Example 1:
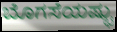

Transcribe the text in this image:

ಬೊಗಸೆಯಷ್ಟು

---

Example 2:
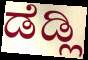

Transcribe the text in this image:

ಡೆಡ್ಲಿ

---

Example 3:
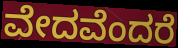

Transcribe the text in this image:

ವೇದವೆಂದರೆ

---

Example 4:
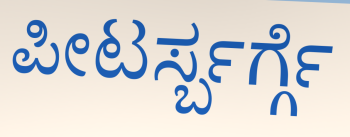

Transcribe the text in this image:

ಪೀಟರ್ಸ್ಬರ್ಗ್ಗೆ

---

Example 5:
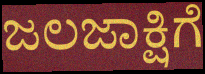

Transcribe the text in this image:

ಜಲಜಾಕ್ಷಿಗೆ